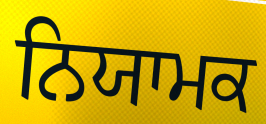
ਨਿਯਾਮਕ